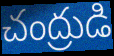
చంద్రుడి